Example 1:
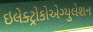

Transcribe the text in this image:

ઇલેક્ટ્રોકોએગ્યુલેશન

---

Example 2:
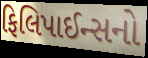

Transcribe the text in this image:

ફિલિપાઈન્સનો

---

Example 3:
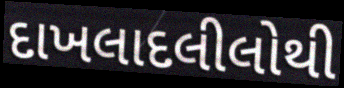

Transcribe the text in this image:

દાખલાદલીલોથી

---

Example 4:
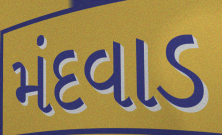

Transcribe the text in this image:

મંદવાડ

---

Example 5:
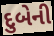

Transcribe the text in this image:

દુબેની